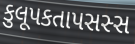
કુલૂપકતાપસસ્સ